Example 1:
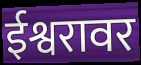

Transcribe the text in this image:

ईश्वरावर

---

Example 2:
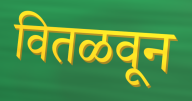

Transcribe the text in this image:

वितळवून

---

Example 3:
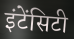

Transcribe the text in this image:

इंटेंसिटी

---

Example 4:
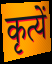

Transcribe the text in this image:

कृत्यें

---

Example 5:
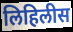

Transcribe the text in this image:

लिहिलीस